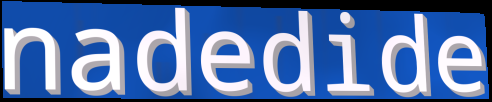
nadedide